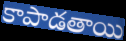
కాపాడతాయి